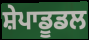
ਸ਼ੇਪਾਡੂਡਲ